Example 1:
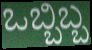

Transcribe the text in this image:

ಒಬ್ಬಿಬ್ಬ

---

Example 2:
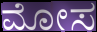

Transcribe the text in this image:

ಮೋಸ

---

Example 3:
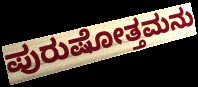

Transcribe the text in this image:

ಪುರುಷೋತ್ತಮನು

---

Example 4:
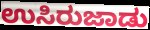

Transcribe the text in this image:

ಉಸಿರುಜಾಡು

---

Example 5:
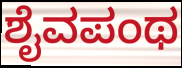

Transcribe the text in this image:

ಶೈವಪಂಥ